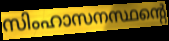
സിംഹാസനസ്ഥന്റെ